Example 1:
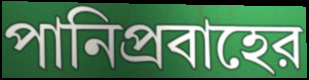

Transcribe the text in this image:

পানিপ্রবাহের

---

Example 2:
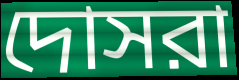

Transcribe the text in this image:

দোসরা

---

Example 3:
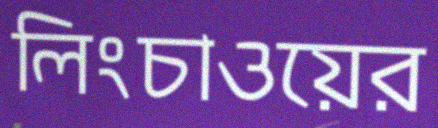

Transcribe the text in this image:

লিংচাওয়ের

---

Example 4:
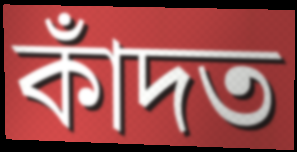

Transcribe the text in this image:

কাঁদত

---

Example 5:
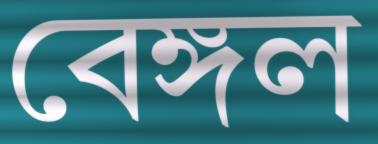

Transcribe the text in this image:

বেঙ্গল